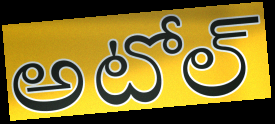
అటోల్